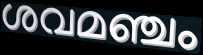
ശവമഞ്ചം